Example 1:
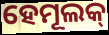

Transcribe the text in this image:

ହେମୂଲକ୍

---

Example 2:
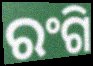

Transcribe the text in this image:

ରଂଗି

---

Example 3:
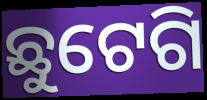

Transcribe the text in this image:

ଛୁଟେଗି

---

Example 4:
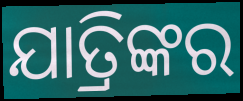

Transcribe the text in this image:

ଯାତ୍ରିଙ୍କର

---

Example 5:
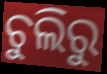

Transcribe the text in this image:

ଚୁଲିରୁ